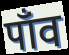
पांँव